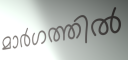
മാർഗത്തിൽ